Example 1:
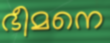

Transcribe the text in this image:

ഭീമനെ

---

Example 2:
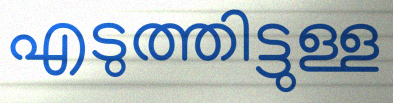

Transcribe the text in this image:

എടുത്തിട്ടുള്ള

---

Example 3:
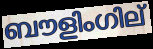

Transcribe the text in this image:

ബൗളിംഗില്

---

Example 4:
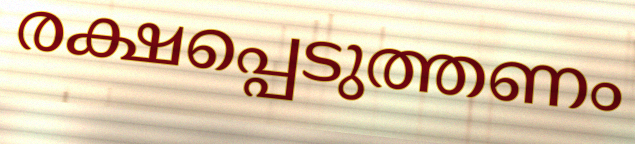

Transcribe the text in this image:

രക്ഷപ്പെടുത്തണം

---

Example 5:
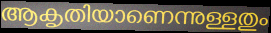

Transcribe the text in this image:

ആകൃതിയാണെന്നുള്ളതും